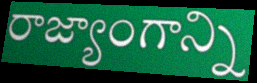
రాజ్యాంగాన్ని